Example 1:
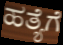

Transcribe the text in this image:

ಹತ್ಯೆಗೆ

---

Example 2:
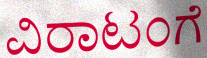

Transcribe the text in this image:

ವಿರಾಟಂಗೆ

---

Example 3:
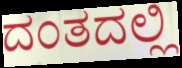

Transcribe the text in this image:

ದಂತದಲ್ಲಿ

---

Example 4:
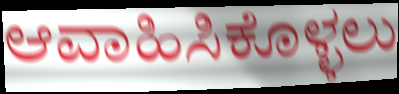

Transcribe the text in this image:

ಆವಾಹಿಸಿಕೊಳ್ಳಲು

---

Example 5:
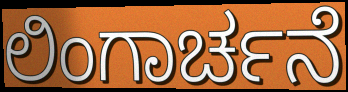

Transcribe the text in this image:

ಲಿಂಗಾರ್ಚನೆ